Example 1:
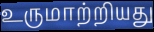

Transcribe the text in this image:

உருமாற்றியது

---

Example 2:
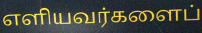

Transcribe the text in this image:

எளியவர்களைப்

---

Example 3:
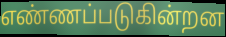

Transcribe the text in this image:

எண்ணப்படுகின்றன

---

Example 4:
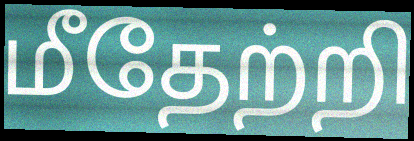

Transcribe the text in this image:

மீதேற்றி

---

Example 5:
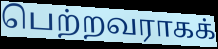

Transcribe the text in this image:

பெற்றவராகக்